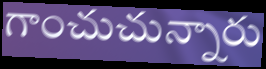
గాంచుచున్నారు